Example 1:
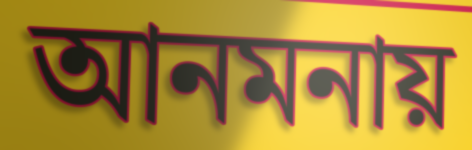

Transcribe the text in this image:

আনমনায়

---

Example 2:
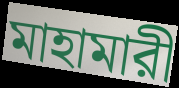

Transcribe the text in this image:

মাহামারী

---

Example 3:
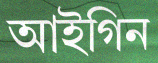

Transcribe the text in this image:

আইগিন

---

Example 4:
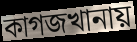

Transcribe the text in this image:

কাগজখানায়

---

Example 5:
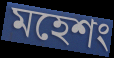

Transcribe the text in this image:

মহেশং